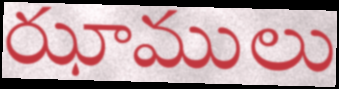
ఝాములు